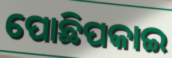
ପୋଛିପକାଇ